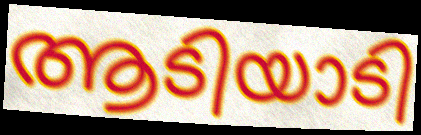
ആടിയാടി